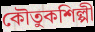
কৌতুকশিল্পী